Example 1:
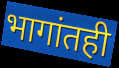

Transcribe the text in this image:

भागांतही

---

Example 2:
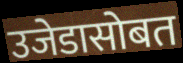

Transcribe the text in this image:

उजेडासोबत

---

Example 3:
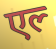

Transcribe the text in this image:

एल्‍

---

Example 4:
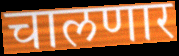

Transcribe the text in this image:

चालणार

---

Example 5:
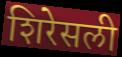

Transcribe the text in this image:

शिरेसली